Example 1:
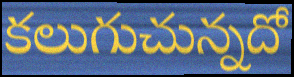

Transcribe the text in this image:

కలుగుచున్నదో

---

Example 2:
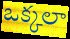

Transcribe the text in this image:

ఒక్కలా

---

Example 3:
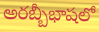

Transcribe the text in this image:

అరబ్బీభాషలో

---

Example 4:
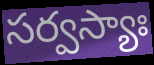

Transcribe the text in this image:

సర్వస్యాః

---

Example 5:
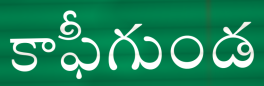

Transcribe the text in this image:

కాఫీగుండ